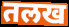
तलख